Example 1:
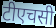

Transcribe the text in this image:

टीएचसी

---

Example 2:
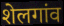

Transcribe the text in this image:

शेलगांव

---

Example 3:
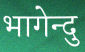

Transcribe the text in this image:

भागेन्दु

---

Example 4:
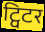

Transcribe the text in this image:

ट्विटर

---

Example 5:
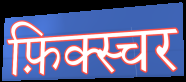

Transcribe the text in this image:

फ़िक्स्चर